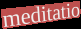
meditatio